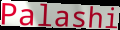
Palashi